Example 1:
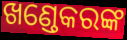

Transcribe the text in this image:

ଖଣ୍ଡେକରଙ୍କ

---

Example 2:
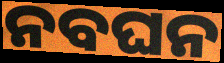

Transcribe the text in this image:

ନବଘନ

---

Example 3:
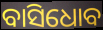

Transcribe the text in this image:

ବାସିଧୋବ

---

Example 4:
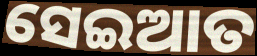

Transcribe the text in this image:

ସେଇଆତ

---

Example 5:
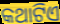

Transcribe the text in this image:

କଥାଟିଏ